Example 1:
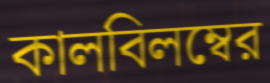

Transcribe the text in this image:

কালবিলম্বের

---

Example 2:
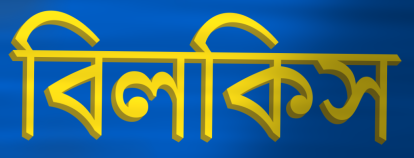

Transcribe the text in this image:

বিলকিস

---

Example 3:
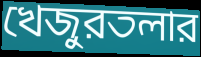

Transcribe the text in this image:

খেজুরতলার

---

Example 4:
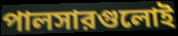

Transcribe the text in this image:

পালসারগুলোই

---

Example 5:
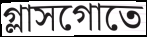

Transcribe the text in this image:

গ্লাসগোতে